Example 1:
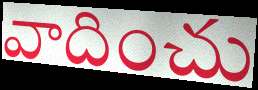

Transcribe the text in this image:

వాదించు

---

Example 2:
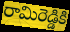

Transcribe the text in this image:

రామిరెడ్డికి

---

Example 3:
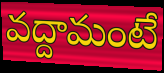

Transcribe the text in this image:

వద్దామంటే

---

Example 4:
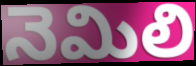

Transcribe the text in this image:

నెమిలి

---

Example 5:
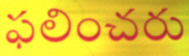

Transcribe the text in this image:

ఫలించరు